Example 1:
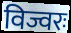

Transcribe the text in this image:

विज्वरः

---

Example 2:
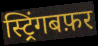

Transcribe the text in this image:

स्ट्रिंगबफ़र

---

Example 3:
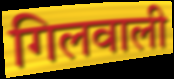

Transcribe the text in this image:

गिलवाली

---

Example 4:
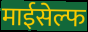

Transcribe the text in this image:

माईसेल्फ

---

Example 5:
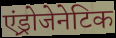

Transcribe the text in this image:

एंड्रोजेनेटिक